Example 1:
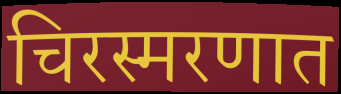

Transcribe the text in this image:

चिरस्मरणात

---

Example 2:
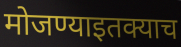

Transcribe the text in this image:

मोजण्याइतक्याच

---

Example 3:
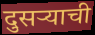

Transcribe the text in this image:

दुसऱ्याची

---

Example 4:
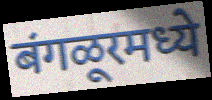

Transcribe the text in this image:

बंगळूरमध्ये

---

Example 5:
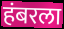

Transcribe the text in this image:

हंबरला